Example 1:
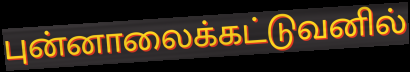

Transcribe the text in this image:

புன்னாலைக்கட்டுவனில்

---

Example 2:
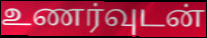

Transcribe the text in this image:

உணர்வுடன்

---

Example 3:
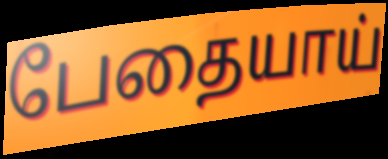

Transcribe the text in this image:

பேதையாய்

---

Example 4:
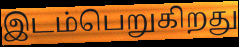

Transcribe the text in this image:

இடம்பெறுகிறது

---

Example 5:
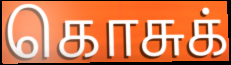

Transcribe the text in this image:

கொசுக்